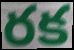
రక